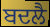
ਬਦਲੈ